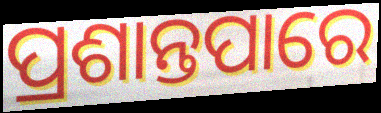
ପ୍ରଶାନ୍ତପାରେ